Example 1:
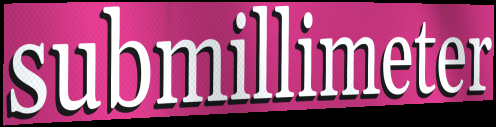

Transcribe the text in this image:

submillimeter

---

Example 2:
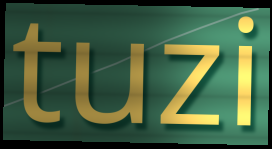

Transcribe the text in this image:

tuzi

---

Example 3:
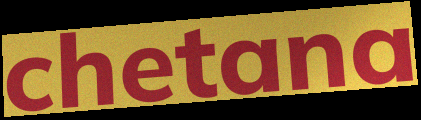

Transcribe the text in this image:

chetana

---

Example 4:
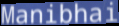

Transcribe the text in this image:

Manibhai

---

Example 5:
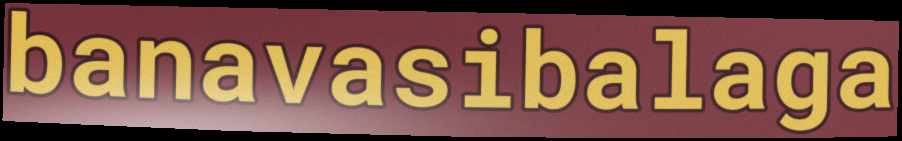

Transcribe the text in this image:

banavasibalaga